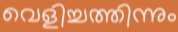
വെളിച്ചത്തിന്നും